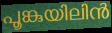
പൂങ്കുയിലിൻ